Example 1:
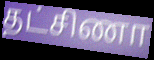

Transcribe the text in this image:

தட்சிணா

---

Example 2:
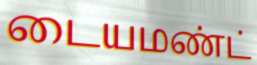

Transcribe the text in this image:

டையமண்ட்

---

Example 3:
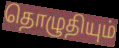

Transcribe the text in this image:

தொழுதியும்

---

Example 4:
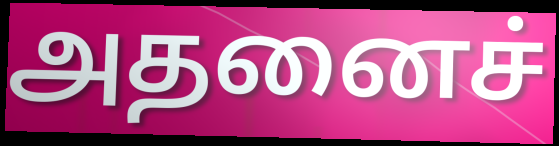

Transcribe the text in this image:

அதனைச்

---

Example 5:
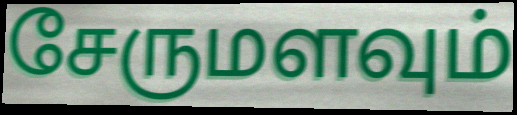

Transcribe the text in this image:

சேருமளவும்